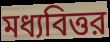
মধ্যবিত্তর